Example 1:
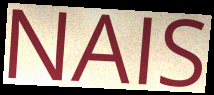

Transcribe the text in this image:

NAIS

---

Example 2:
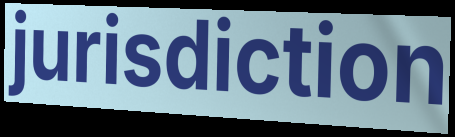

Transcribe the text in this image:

jurisdiction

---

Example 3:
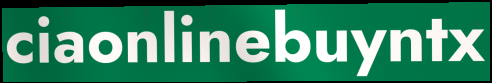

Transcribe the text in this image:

ciaonlinebuyntx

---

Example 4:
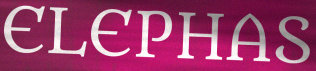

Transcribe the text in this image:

ELEPHAS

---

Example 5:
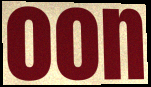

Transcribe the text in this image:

oon